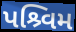
પશ્ર્વિમ